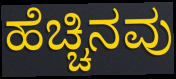
ಹೆಚ್ಚಿನವು